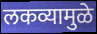
लकव्यामुळे